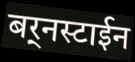
बर्नस्टाईन